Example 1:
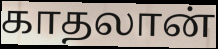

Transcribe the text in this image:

காதலான்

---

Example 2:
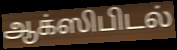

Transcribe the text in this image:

ஆக்ஸிபிடல்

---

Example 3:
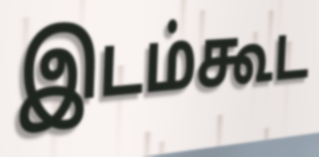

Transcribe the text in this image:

இடம்கூட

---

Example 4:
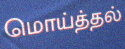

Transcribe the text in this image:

மொய்த்தல்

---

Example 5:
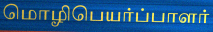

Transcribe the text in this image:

மொழிபெயர்ப்பாளர்